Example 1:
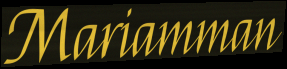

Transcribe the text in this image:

Mariamman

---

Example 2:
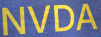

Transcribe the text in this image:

NVDA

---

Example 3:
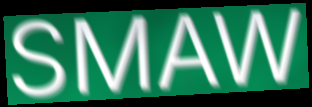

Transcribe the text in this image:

SMAW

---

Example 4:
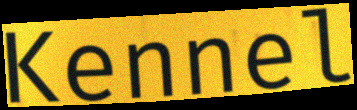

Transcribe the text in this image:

Kennel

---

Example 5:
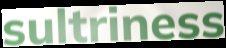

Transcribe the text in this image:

sultriness